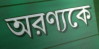
অরণ্যকে